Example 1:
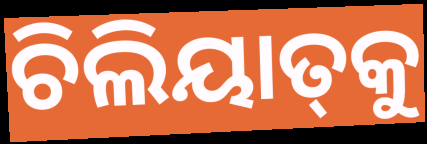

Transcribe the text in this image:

ଚିଲିୟାତ୍‍କୁ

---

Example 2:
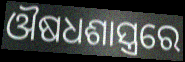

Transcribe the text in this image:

ଔଷଧଶାସ୍ତ୍ରରେ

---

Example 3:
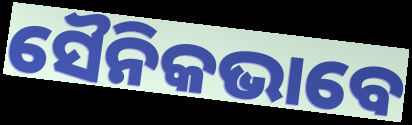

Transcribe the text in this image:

ସୈନିକଭାବେ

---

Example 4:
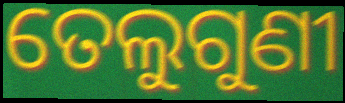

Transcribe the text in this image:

ତେଲୁଗୁଣୀ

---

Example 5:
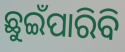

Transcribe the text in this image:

ଛୁଇଁପାରିବି